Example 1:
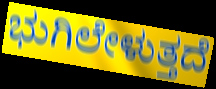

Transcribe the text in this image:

ಭುಗಿಲೇಳುತ್ತದೆ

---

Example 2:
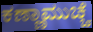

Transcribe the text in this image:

ಕಣ್ಣಾಮುಚ್ಚೆ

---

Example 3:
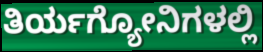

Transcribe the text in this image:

ತಿರ್ಯಗ್ಯೋನಿಗಳಲ್ಲಿ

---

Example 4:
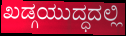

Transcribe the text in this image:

ಖಡ್ಗಯುದ್ಧದಲ್ಲಿ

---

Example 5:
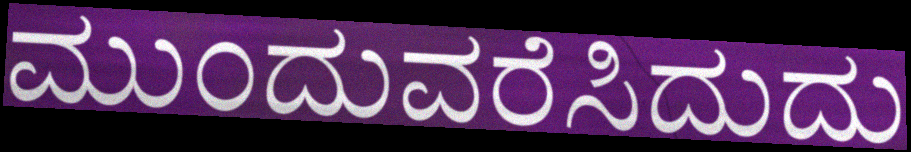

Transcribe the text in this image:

ಮುಂದುವರೆಸಿದುದು